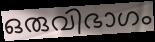
ഒരുവിഭാഗം